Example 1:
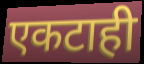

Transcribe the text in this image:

एकटाही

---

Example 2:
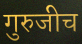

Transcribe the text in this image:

गुरुजीच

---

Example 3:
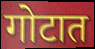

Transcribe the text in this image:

गोटात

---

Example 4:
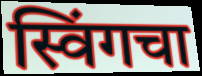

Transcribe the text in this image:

स्विंगचा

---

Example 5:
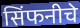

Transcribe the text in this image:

सिंफनीचे